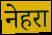
नेहरा